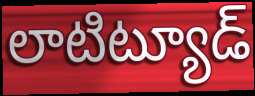
లాటిట్యూడ్